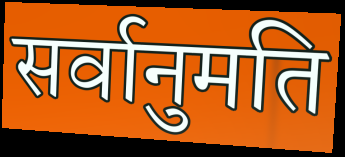
सर्वानुमति